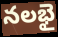
నలభై